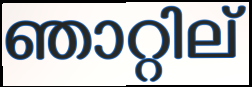
ഞാറ്റില്